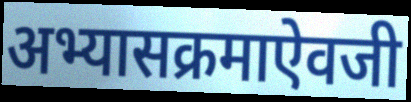
अभ्यासक्रमाऐवजी